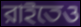
রাইতেও